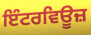
ਇੰਟਰਵਿਊਜ਼